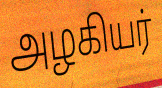
அழகியர்